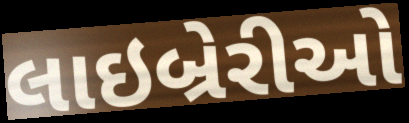
લાઇબ્રેરીઓ